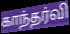
காந்தர்வி